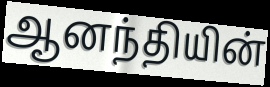
ஆனந்தியின்